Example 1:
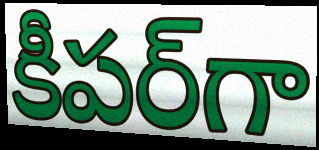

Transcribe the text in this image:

కీపర్‌గా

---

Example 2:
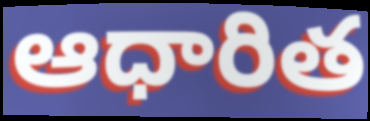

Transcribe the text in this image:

ఆధారిత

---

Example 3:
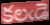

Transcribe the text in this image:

కలఁడె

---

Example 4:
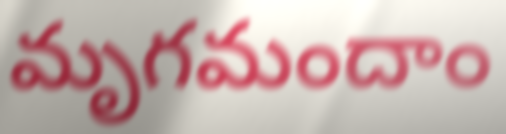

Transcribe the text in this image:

మృగమందాం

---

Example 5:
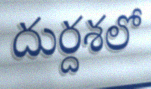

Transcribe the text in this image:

దుర్దశలో